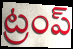
ట్రంప్